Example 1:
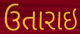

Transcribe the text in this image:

ઉતારાઇ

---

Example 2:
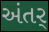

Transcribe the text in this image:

અંતર્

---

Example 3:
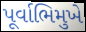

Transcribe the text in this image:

પૂર્વાભિમુખે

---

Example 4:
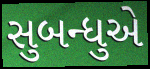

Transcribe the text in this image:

સુબન્ધુએ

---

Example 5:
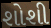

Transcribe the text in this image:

શોશી